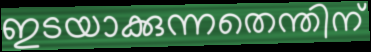
ഇടയാക്കുന്നതെന്തിന്